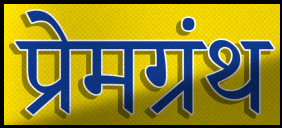
प्रेमग्रंथ